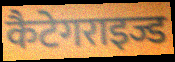
कैटेगराइज्ड